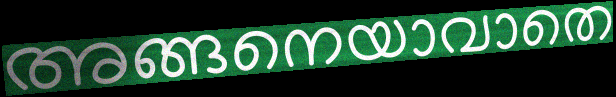
അങ്ങനെയാവാതെ